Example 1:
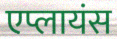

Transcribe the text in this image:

एप्लायंस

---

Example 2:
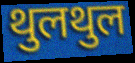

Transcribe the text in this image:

थुलथुल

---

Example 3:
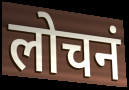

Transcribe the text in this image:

लोचनं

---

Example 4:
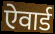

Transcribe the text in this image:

ऐवार्ड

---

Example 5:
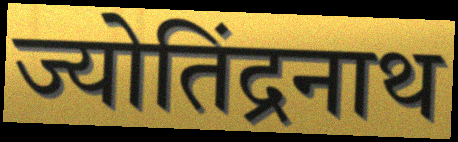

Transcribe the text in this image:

ज्योतिंद्रनाथ